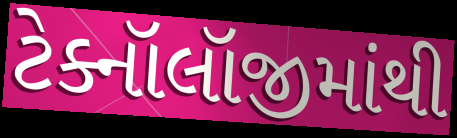
ટેક્નૉલૉજીમાંથી